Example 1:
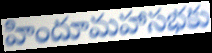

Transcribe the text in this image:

హిందూమహాసభకు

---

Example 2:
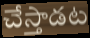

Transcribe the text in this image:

చేస్తాడట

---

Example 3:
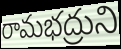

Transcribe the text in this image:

రామభద్రుని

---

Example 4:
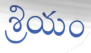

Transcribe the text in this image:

శ్రియం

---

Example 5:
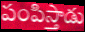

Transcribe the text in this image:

పంపిస్తాడు